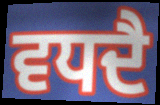
ਵਧਦੈ